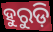
ହୁରୁଡ଼ି